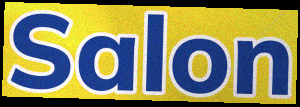
Salon